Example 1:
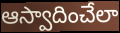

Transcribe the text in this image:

ఆస్వాదించేలా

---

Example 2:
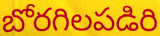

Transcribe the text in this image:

బోరగిలపడిరి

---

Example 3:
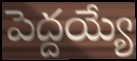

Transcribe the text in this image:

పెద్దయ్యే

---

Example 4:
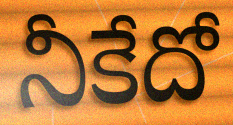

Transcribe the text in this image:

నీకేదో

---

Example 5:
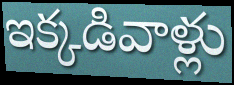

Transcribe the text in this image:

ఇక్కడివాళ్లు